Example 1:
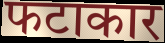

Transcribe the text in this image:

फटाकार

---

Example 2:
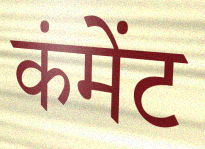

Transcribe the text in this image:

कंमेंट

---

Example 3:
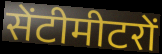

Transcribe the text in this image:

सेंटीमीटरों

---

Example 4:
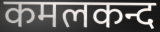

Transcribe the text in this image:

कमलकन्द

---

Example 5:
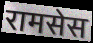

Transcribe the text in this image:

रामसेस